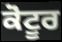
ਕੋਟੂਰ